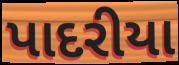
પાદરીયા